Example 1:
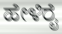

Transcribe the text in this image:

ಹೇಳಿರೈ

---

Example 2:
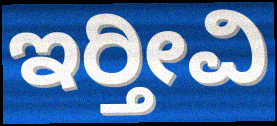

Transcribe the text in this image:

ಇರ‍್ತೀವಿ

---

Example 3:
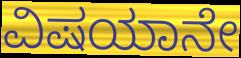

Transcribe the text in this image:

ವಿಷಯಾನೇ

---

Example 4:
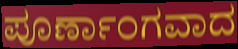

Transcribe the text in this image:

ಪೂರ್ಣಾಂಗವಾದ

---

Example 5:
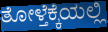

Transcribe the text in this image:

ತೋಳ್ತೆಕ್ಕೆಯಲ್ಲಿ